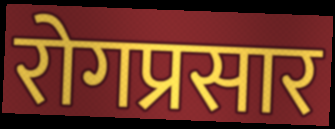
रोगप्रसार